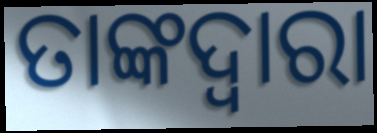
ତାଙ୍କଦ୍ୱାରା